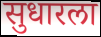
सुधारला